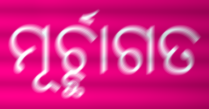
ମୂର୍ଚ୍ଛାଗତ